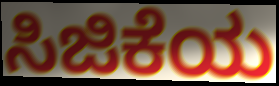
ಸಿಜಿಕೆಯ